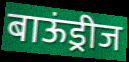
बाऊंड्रीज